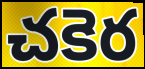
చకెర